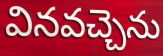
వినవచ్చెను